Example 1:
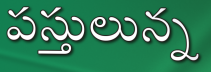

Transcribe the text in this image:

పస్తులున్న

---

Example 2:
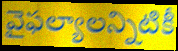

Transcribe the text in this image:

వైఫల్యాలన్నిటికీ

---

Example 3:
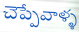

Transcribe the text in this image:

చెప్పేవాళ్ళ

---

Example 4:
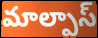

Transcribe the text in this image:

మాల్పాస్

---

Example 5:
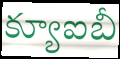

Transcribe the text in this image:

క్యూఐబీ